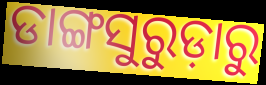
ଡାଙ୍ଗସୁରୁଡ଼ାରୁ